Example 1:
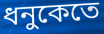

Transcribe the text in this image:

ধনুকেতে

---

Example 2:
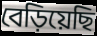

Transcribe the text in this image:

বেড়িয়েছি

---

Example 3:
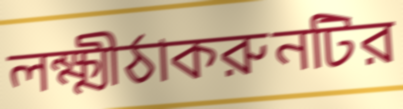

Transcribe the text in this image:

লক্ষ্মীঠাকরুনটির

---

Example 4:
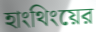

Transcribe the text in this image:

হাংথিংয়ের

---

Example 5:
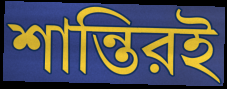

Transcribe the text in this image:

শান্তিরই